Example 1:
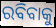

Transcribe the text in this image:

ରବିବାକୁ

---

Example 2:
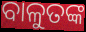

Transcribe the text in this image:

ବାଳୁତଙ୍କ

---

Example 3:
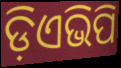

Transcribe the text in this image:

ଡ଼ିଏଭିପି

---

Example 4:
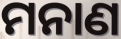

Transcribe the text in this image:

ମନାଣ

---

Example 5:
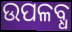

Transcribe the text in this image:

ଉପଳବ୍ଧ